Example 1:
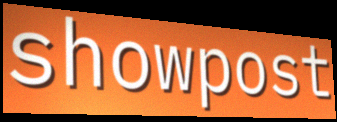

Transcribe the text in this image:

showpost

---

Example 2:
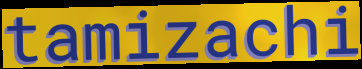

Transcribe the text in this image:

tamizachi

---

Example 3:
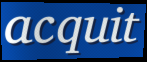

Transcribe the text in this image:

acquit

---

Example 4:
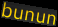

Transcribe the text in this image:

bunun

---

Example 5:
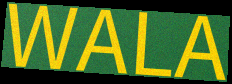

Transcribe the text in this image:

WALA